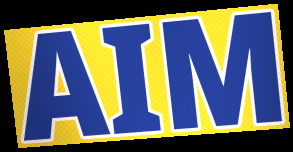
AIM